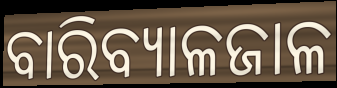
ବାରିବ୍ୟାଳଜାଳ